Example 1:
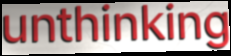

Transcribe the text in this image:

unthinking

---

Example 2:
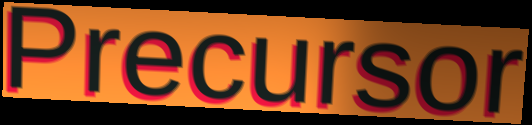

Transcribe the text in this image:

Precursor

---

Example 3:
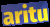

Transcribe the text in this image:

aritu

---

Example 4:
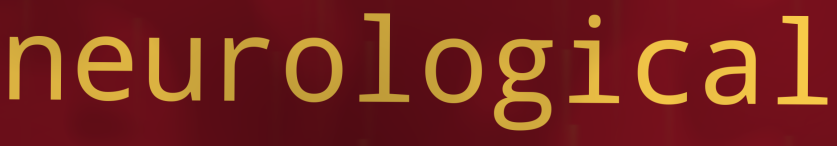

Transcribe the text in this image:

neurological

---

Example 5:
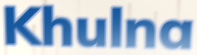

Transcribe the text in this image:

Khulna